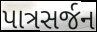
પાત્રસર્જન